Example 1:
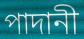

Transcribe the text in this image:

পাদানী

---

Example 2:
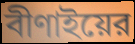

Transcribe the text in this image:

বীণাইয়ের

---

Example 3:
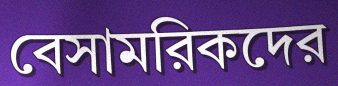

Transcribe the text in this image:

বেসামরিকদের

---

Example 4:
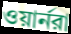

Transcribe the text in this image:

ওয়ার্নরা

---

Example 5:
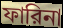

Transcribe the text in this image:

ফারিনা